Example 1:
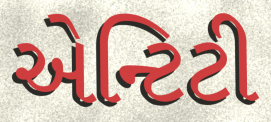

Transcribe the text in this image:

એન્ટિટી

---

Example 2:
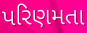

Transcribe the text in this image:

પરિણમતા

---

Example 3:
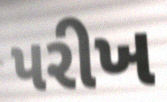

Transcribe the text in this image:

પરીખ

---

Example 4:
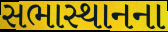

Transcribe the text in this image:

સભાસ્થાનના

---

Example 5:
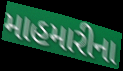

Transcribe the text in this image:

માહમારીના